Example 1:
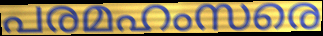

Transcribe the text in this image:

പരമഹംസരെ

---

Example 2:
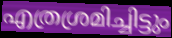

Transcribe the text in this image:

എത്രശ്രമിച്ചിട്ടും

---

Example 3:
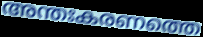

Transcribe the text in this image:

അന്തഃകരണത്തെ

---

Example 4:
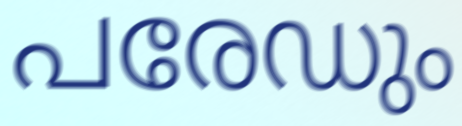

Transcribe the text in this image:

പരേഡും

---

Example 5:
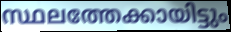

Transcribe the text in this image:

സ്ഥലത്തേക്കായിട്ടും